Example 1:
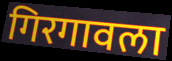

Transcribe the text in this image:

गिरगावला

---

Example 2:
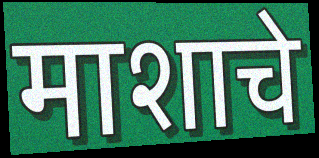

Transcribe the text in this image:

माशाचे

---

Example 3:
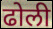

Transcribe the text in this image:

ढोली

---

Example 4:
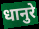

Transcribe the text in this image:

धानुरे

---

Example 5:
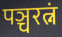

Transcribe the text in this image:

पञ्चरत्नं